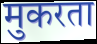
मुकरता